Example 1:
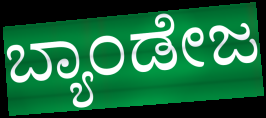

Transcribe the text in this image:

ಬ್ಯಾಂಡೇಜ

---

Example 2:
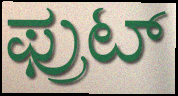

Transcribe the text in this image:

ಫ್ರುಟ್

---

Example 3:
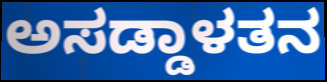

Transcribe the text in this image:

ಅಸಡ್ಡಾಳತನ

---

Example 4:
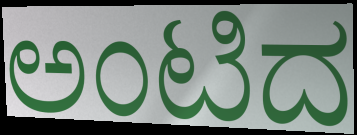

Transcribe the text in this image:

ಅಂಟಿದ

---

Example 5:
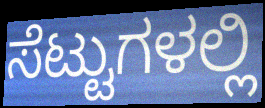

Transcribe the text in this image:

ಸೆಟ್ಟುಗಳಲ್ಲಿ